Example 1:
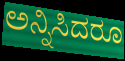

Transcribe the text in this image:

ಅನ್ನಿಸಿದರೂ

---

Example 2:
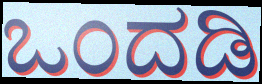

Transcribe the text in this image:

ಒಂದಡಿ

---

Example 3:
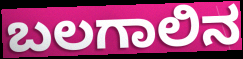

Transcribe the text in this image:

ಬಲಗಾಲಿನ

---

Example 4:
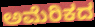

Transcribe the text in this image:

ಅಮೆರಿಕದ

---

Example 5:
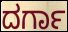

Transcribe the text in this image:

ದರ್ಗಾ